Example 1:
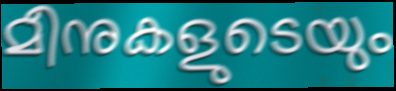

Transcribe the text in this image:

മീനുകളുടെയും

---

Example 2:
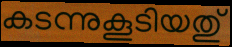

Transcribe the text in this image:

കടന്നുകൂടിയതു്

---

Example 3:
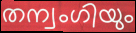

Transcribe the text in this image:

തന്വംഗിയും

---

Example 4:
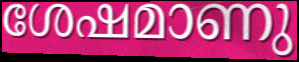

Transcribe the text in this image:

ശേഷമാണു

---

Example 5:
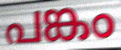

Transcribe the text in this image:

പങ്കം